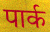
पार्क